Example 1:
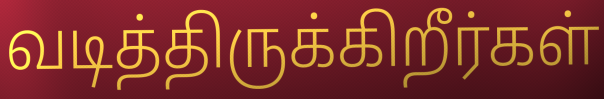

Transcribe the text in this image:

வடித்திருக்கிறீர்கள்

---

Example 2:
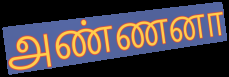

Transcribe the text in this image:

அண்ணனா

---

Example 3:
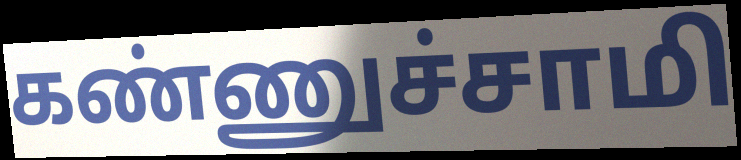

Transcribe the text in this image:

கண்ணுச்சாமி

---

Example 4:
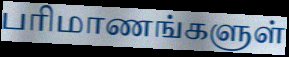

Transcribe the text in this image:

பரிமாணங்களுள்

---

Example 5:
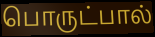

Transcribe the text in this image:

பொருட்பால்